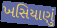
ખસિયાણું